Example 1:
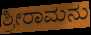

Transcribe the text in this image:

ಶ್ರೀರಾಮನು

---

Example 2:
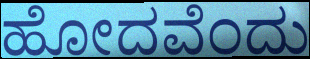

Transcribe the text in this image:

ಹೋದವೆಂದು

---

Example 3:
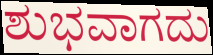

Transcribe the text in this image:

ಶುಭವಾಗದು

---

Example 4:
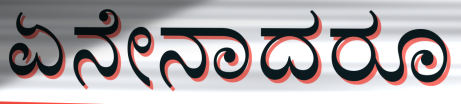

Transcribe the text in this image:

ಏನೇನಾದರೂ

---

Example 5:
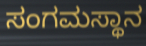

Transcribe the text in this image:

ಸಂಗಮಸ್ಥಾನ